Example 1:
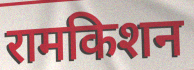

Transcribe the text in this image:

रामकिशन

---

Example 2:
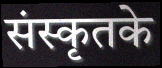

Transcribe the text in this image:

संस्कृतके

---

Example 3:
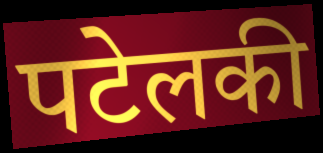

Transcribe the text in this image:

पटेलकी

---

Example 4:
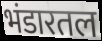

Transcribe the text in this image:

भंडारतल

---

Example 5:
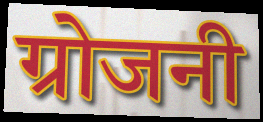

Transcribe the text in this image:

ग्रोजनी